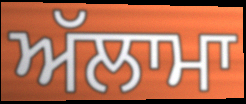
ਅੱਲਾਮਾ